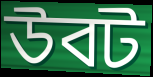
উবট